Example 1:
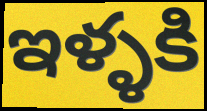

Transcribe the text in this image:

ఇళ్ళకి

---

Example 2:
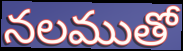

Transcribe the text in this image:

నలముతో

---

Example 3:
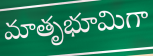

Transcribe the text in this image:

మాతృభూమిగా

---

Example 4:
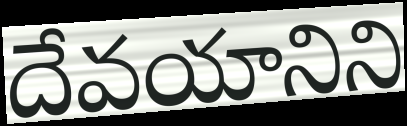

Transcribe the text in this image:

దేవయానిని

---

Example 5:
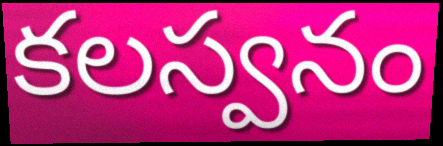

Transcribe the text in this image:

కలస్వనం